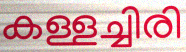
കള്ളച്ചിരി